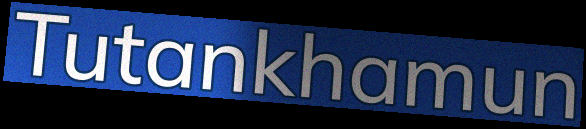
Tutankhamun